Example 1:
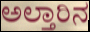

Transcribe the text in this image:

ಅಲ್ತಾರಿನ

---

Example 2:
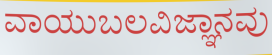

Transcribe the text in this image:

ವಾಯುಬಲವಿಜ್ಞಾನವು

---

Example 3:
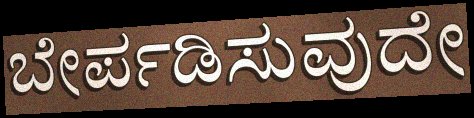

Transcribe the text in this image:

ಬೇರ್ಪಡಿಸುವುದೇ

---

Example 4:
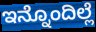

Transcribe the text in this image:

ಇನ್ನೊಂದಿಲ್ಲೆ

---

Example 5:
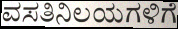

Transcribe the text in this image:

ವಸತಿನಿಲಯಗಳಿಗೆ